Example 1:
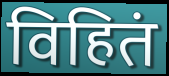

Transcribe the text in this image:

विहितं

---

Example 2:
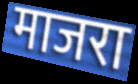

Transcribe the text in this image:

माजरा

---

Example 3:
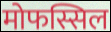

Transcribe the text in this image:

मोफस्सिल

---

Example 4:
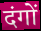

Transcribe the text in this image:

दंगों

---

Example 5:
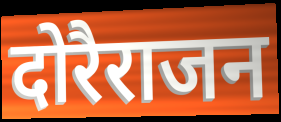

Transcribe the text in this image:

दोरैराजन